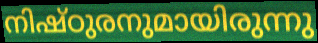
നിഷ്ഠുരനുമായിരുന്നു